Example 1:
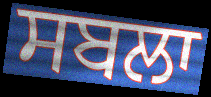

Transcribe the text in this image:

ਸਬਲਾ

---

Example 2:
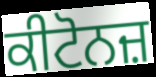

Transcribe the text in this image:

ਕੀਟੋਨਜ਼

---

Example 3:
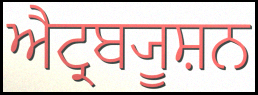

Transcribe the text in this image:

ਐਟ੍ਰਬ੍ਯੂਸ਼ਨ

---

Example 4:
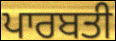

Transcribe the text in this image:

ਪਾਰਬਤੀ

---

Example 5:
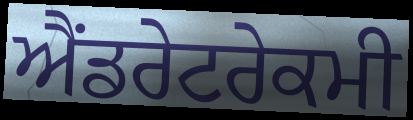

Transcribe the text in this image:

ਐਂਡਰੇਟਰੇਕਮੀ